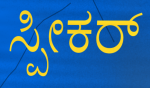
ಸ್ಪೀಕರ್